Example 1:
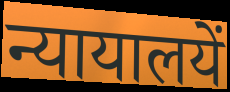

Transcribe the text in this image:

न्यायालयें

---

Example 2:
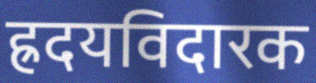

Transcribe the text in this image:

ह्रदयविदारक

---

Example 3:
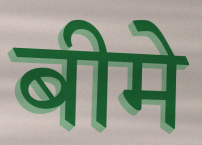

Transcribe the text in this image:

बीमे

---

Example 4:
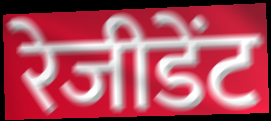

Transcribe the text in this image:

रेजीडेंट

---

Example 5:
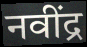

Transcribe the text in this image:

नवींद्र